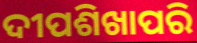
ଦୀପଶିଖାପରି